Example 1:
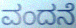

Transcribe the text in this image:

ವಂದನೆ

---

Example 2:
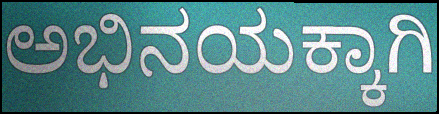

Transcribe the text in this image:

ಅಭಿನಯಕ್ಕಾಗಿ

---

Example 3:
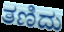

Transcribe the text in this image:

ತಣಿದು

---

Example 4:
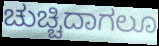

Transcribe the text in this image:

ಚುಚ್ಚಿದಾಗಲೂ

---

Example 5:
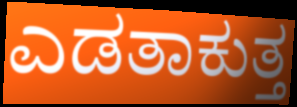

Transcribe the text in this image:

ಎಡತಾಕುತ್ತ